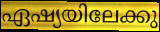
ഏഷ്യയിലേക്കു